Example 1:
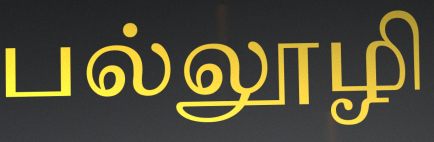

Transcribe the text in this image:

பல்லூழி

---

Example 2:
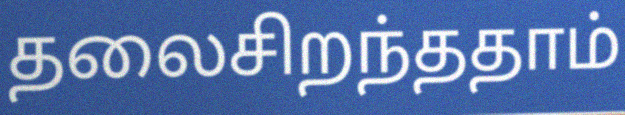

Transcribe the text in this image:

தலைசிறந்ததாம்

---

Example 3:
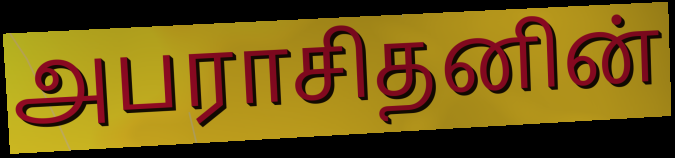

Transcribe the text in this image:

அபராசிதனின்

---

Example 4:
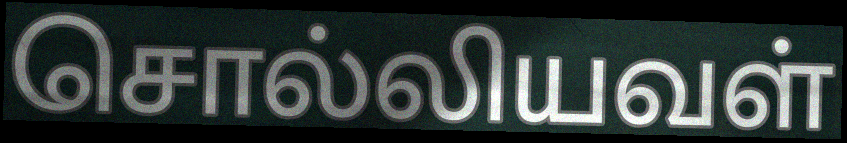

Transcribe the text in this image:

சொல்லியவள்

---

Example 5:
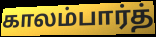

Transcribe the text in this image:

காலம்பார்த்